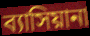
ব্যাসিয়ানা